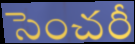
సెంచరీ